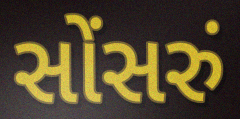
સોંસરું